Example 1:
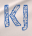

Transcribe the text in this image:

KJ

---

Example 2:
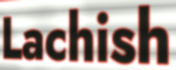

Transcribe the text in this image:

Lachish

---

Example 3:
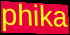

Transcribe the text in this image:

phika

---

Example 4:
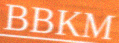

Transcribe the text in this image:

BBKM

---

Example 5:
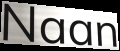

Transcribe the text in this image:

Naan